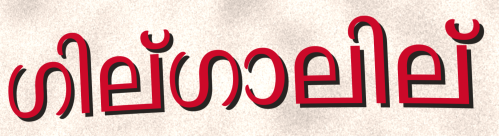
ഗില്ഗാലില്